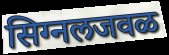
सिग्नलजवळ